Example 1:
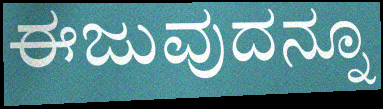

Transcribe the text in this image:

ಈಜುವುದನ್ನೂ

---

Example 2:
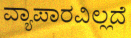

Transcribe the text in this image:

ವ್ಯಾಪಾರವಿಲ್ಲದೆ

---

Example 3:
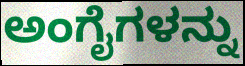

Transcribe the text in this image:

ಅಂಗೈಗಳನ್ನು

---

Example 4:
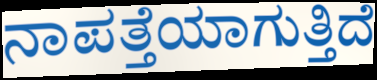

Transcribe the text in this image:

ನಾಪತ್ತೆಯಾಗುತ್ತಿದೆ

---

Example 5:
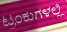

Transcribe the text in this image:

ಟ್ರಂಕುಗಳಲ್ಲಿ